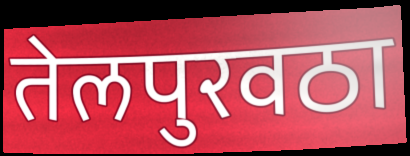
तेलपुरवठा